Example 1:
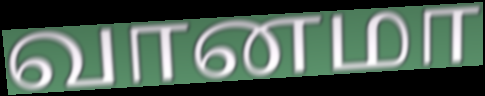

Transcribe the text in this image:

வானமா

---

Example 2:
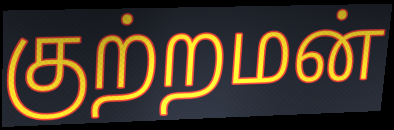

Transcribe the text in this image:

குற்றமன்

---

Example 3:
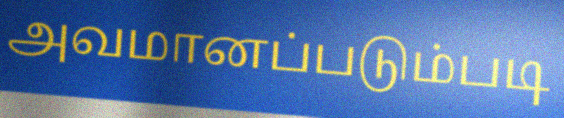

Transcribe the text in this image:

அவமானப்படும்படி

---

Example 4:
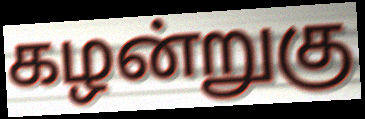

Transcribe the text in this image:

கழன்றுகு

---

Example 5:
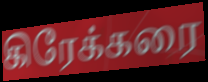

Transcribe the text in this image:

கிரேக்கரை